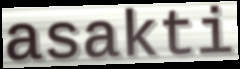
asakti